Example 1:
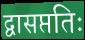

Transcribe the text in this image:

द्वासप्ततिः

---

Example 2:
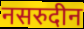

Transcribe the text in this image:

नसरुदीन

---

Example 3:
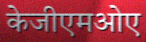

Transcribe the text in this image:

केजीएमओए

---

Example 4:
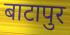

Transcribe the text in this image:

बाटापुर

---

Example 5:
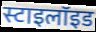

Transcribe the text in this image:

स्टाइलॉइड